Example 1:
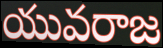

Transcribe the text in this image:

యువరాజ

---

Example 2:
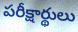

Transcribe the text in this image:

పరీక్షార్థులు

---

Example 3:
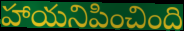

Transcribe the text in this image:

హాయనిపించింది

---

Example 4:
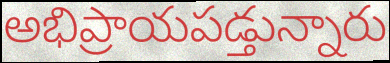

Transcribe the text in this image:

అభిప్రాయపడ్తున్నారు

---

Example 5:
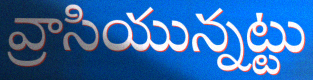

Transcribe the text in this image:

వ్రాసియున్నట్టు